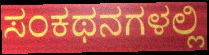
ಸಂಕಥನಗಳಲ್ಲಿ